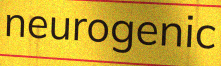
neurogenic